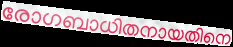
രോഗബാധിതനായതിനെ